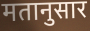
मतानुसार